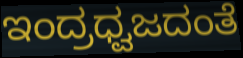
ಇಂದ್ರಧ್ವಜದಂತೆ